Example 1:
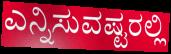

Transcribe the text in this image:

ಎನ್ನಿಸುವಷ್ಟರಲ್ಲಿ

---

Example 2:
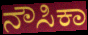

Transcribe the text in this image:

ನೌಸಿಕಾ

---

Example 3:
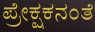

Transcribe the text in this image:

ಪ್ರೇಕ್ಷಕನಂತೆ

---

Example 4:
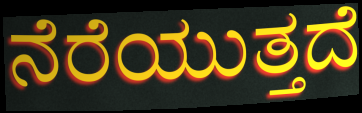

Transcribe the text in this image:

ನೆರೆಯುತ್ತದೆ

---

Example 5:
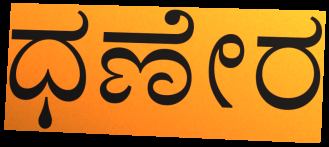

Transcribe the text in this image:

ಧಣೇರ